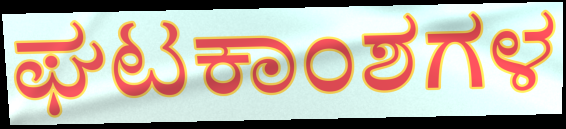
ಘಟಕಾಂಶಗಳ